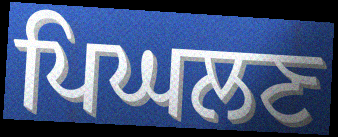
ਪਿਘਲਣ